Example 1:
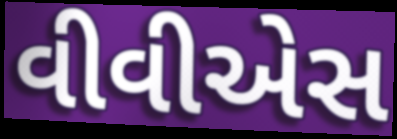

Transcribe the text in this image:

વીવીએસ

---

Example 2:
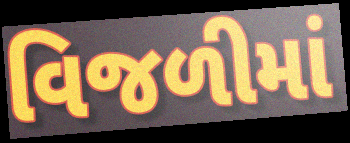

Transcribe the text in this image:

વિજળીમાં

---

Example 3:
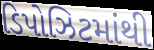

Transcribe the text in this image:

ડિપોઝિટમાંથી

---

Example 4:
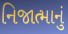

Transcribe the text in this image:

નિજાત્માનું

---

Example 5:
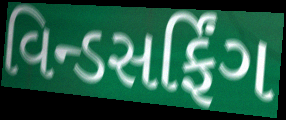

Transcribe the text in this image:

વિન્ડસર્ફિંગ